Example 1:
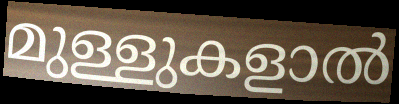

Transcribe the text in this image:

മുള്ളുകളാൽ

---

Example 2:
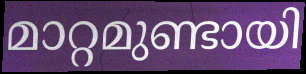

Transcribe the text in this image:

മാറ്റമുണ്ടായി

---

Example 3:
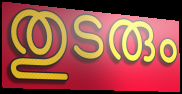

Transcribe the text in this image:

തുടരും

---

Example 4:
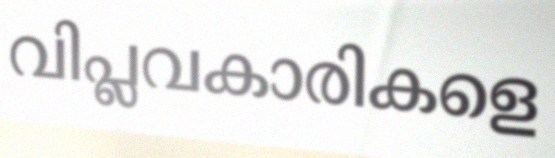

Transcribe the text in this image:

വിപ്ലവകാരികളെ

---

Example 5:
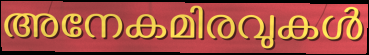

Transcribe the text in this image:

അനേകമിരവുകൾ